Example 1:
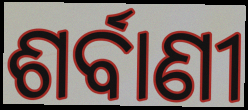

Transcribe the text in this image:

ଶର୍ବାଣୀ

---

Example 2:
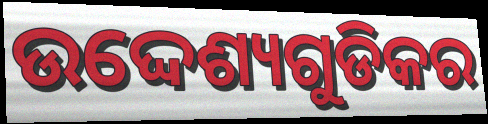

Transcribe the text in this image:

ଉଦ୍ଦେଶ୍ୟଗୁଡିକର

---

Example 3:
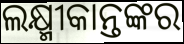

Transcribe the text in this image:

ଲକ୍ଷ୍ମୀକାନ୍ତଙ୍କର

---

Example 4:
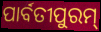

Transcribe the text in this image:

ପାର୍ବତୀପୁରମ୍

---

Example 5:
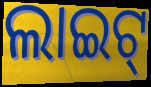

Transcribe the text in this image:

ଲାଇଟ୍